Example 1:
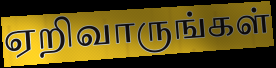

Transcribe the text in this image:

ஏறிவாருங்கள்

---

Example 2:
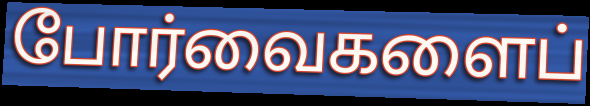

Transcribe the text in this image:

போர்வைகளைப்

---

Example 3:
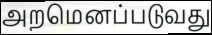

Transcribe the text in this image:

அறமெனப்படுவது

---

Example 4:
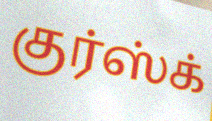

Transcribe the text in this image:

குர்ஸ்க்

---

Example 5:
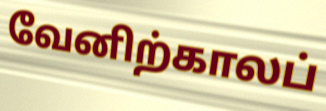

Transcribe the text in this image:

வேனிற்காலப்